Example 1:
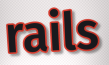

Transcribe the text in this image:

rails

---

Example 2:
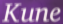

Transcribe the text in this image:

Kune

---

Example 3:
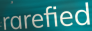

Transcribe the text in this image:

rarefied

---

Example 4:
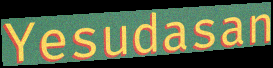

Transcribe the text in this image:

Yesudasan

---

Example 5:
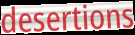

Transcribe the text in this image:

desertions